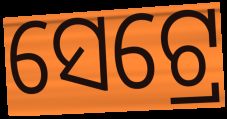
ସେଟ୍ରେ